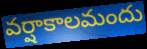
వర్షాకాలమందు